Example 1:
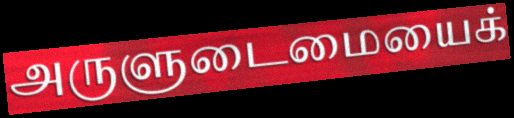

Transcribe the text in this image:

அருளுடைமையைக்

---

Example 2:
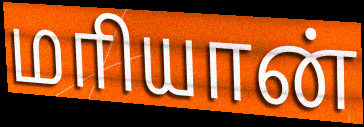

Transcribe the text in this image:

மரியான்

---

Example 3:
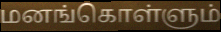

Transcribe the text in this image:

மனங்கொள்ளும்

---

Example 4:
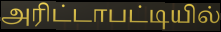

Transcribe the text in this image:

அரிட்டாபட்டியில்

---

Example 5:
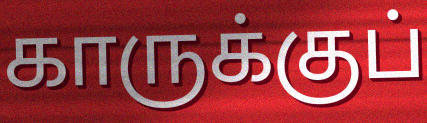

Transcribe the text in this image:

காருக்குப்